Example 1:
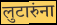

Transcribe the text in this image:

लुटारुंना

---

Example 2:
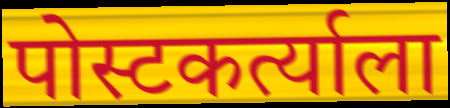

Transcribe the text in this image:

पोस्टकर्त्याला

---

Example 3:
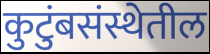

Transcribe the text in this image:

कुटुंबसंस्थेतील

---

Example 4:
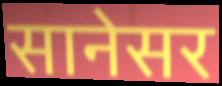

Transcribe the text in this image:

सानेसर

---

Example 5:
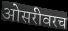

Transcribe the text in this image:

ओसरीवरच